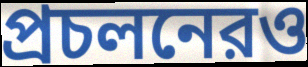
প্রচলনেরও